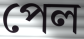
পেল